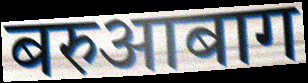
बरुआबाग